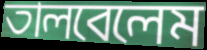
তালবেলেম